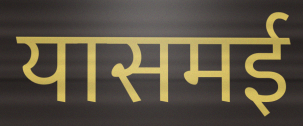
यासमई